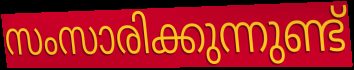
സംസാരിക്കുന്നുണ്ട്